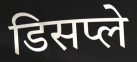
डिसप्ले